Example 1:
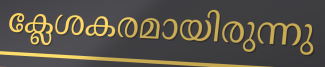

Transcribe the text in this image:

ക്ലേശകരമായിരുന്നു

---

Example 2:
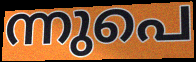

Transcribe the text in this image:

ന്നുപെ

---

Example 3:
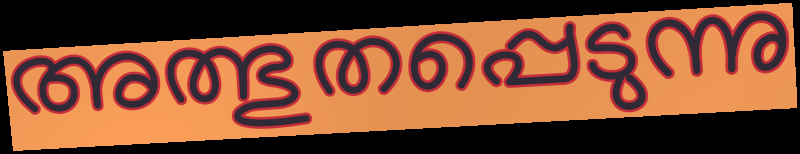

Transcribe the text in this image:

അത്ഭുതപ്പെടുന്നു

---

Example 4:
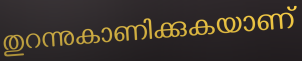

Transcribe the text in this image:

തുറന്നുകാണിക്കുകയാണ്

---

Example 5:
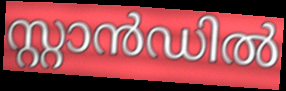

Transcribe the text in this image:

സ്റ്റാൻഡിൽ